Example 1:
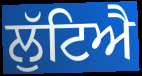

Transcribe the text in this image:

ਲੁੱਟਿਐ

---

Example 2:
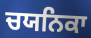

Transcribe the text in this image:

ਚਯਨਿਕਾ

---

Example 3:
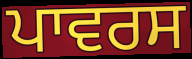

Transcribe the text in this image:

ਪਾਵਰਸ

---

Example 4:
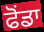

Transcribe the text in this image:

ਫੋਂਡਾ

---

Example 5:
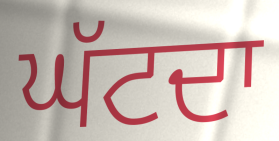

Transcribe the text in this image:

ਘੱਟਦਾ